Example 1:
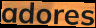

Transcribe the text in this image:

adores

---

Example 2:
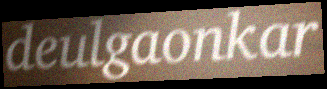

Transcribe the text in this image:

deulgaonkar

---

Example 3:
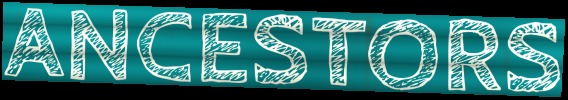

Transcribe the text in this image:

ANCESTORS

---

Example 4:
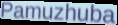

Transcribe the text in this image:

Pamuzhuba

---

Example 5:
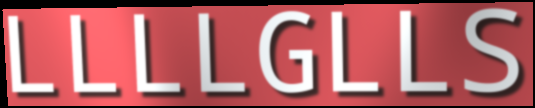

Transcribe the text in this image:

LLLLGLLS